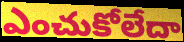
ఎంచుకోలేదా